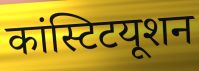
कांस्टिटयूशन